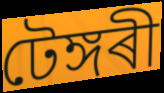
টেঙ্গৰী